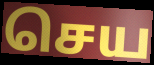
செய